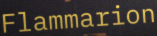
Flammarion